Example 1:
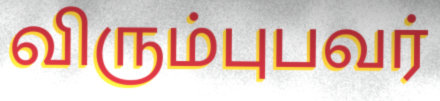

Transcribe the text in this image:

விரும்புபவர்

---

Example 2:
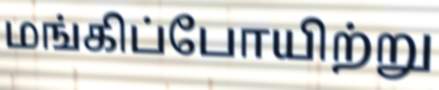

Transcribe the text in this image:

மங்கிப்போயிற்று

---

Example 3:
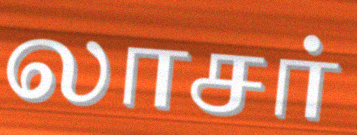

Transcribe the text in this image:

லாசர்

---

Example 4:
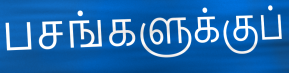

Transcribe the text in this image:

பசங்களுக்குப்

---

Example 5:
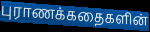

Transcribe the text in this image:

புராணக்கதைகளின்